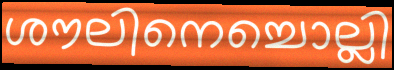
ശൗലിനെച്ചൊല്ലി